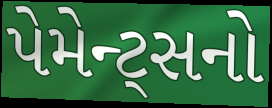
પેમેન્ટ્સનો